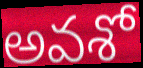
అవశో